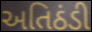
અતિઠંડી